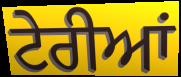
ਟੇਰੀਆਂ